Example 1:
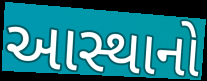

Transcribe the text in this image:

આસ્થાનો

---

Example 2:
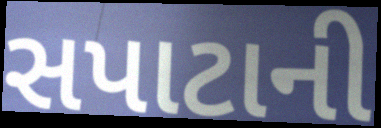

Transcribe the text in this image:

સપાટાની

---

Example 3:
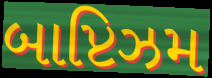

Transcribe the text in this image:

બાપ્ટિઝમ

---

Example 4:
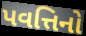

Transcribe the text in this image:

પવત્તિનો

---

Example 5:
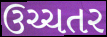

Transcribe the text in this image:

ઉચ્ચતર